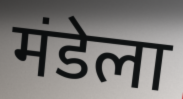
मंडेला